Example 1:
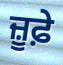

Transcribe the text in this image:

ਜ਼ੂਫ਼ੇ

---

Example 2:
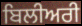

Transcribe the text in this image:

ਬਿਲੀਅਰੀ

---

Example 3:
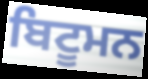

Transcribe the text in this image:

ਬਿਟੂਮਨ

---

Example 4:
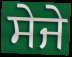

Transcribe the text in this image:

ਸੇਜੇ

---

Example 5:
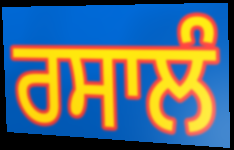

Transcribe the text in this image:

ਰਸਾਲੰ